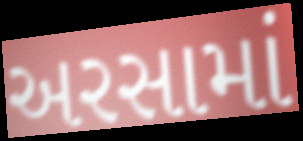
અરસામાં